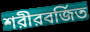
শরীরবর্জিত